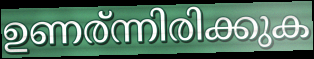
ഉണര്ന്നിരിക്കുക